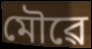
মৌৱে